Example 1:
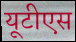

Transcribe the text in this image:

यूटीएस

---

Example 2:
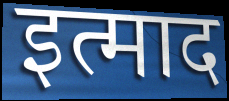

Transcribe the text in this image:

इत्माद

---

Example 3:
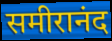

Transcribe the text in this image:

समीरानंद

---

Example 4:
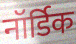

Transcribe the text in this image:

नॉर्डिक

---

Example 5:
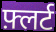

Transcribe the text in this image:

फ़्लर्ट